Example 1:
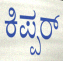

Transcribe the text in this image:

ಕಿಪ್ಪರ್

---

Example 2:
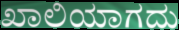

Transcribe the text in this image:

ಖಾಲಿಯಾಗದು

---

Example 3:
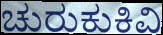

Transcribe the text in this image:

ಚುರುಕುಕಿವಿ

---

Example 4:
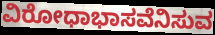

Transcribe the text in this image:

ವಿರೋಧಾಭಾಸವೆನಿಸುವ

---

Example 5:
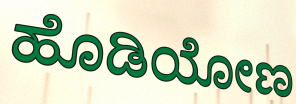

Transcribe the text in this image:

ಹೊಡಿಯೋಣ